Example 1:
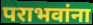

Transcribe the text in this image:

पराभवांना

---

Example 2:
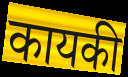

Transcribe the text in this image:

कायकी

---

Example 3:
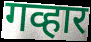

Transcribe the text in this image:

गव्हार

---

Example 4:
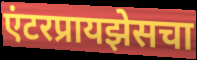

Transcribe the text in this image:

एंटरप्रायझेसचा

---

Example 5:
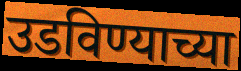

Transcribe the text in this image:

उडविण्याच्या